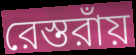
রেস্তরাঁয়